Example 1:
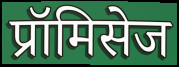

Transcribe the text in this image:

प्रॉमिसेज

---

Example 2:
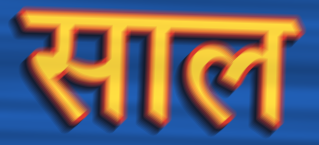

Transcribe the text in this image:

साल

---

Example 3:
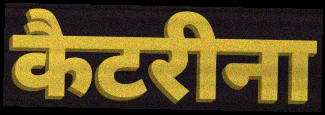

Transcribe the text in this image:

कैटरीना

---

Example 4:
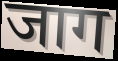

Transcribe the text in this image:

जाग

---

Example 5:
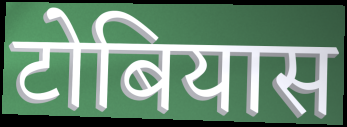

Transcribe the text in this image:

टोबियास